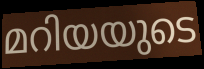
മറിയയുടെ